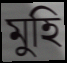
মুহি